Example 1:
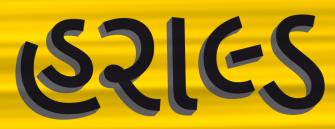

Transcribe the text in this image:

હરાલ્ડ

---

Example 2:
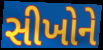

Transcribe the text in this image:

સીખોને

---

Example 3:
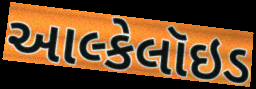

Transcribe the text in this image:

આલ્કેલૉઇડ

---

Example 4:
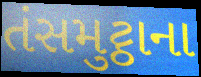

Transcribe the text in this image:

તંસમુટ્ઠાના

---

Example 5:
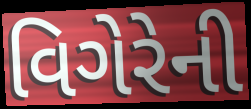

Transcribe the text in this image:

વિગેરેની